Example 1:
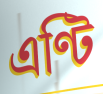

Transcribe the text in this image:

এণ্টি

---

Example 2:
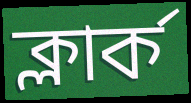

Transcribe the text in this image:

ক্লাৰ্ক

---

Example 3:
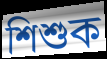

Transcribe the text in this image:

শিশুক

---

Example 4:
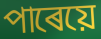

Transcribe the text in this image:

পাৰেয়ে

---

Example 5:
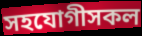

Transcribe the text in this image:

সহযোগীসকল